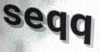
seqq